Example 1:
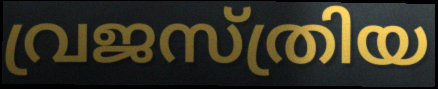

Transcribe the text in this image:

വ്രജസ്ത്രിയ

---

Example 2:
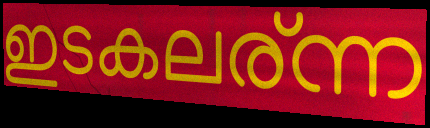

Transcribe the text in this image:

ഇടകലര്ന്ന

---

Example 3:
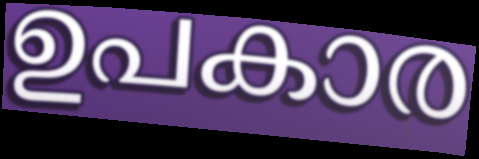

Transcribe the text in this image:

ഉപകാര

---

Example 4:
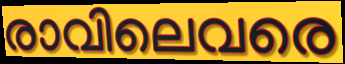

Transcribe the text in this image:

രാവിലെവരെ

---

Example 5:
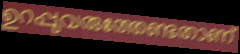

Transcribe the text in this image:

ഉറപ്പുവരുത്തേണ്ടതാണ്